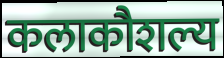
कलाकौशल्य